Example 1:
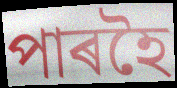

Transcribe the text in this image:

পাৰহৈ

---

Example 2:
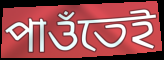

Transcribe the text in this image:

পাওঁতেই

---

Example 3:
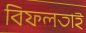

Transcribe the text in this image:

বিফলতাই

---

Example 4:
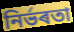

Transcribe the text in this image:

নিৰ্ভৰতা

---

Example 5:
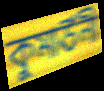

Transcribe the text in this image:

কুমাঊঁনী